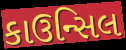
કાઉન્‍સિલ